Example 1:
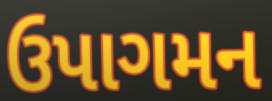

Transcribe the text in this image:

ઉપાગમન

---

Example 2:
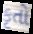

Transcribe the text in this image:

કૃતો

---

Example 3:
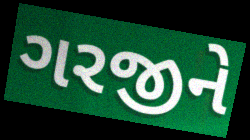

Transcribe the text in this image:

ગરજીને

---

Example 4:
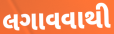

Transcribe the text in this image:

લગાવવાથી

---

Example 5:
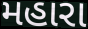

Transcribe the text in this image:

મહારા